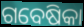
ଗବେଷିକା